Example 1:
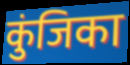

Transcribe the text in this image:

कुंजिका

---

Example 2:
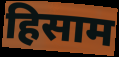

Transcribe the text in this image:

हिसाम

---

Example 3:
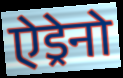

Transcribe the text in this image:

ऐड्रेनो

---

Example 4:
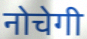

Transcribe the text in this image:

नोचेगी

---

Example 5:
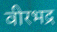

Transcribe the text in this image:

वीरभद्र